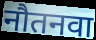
नौतनवा